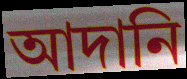
আদানি